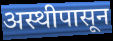
अस्थीपासून